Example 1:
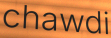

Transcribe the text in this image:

chawdi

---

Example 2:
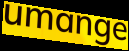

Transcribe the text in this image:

umange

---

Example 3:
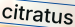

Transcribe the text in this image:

citratus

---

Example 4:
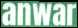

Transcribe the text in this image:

anwar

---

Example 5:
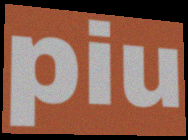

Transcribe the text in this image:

piu